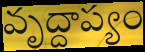
వృద్దాప్యం